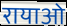
रायाओ